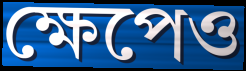
ক্ষেপেও